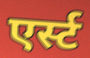
एर्स्ट